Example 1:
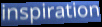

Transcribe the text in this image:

inspiration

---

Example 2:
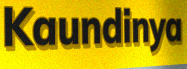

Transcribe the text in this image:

Kaundinya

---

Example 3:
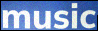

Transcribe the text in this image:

music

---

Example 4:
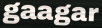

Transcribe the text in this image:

gaagar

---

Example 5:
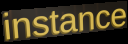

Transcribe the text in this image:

instance